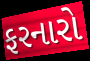
ફરનારો